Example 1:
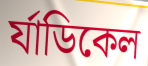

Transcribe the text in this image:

র্যাডিকেল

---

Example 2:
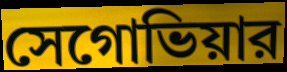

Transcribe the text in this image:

সেগোভিয়ার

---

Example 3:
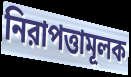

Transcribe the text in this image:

নিরাপত্তামূলক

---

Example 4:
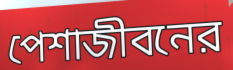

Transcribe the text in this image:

পেশাজীবনের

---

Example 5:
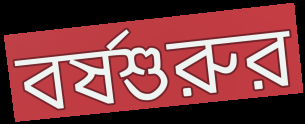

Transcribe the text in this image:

বর্ষশুরুর